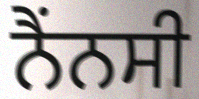
ਨੈਂਨਸੀ